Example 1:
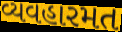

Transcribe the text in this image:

વ્યવહારમત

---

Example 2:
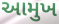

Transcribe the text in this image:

આમુખ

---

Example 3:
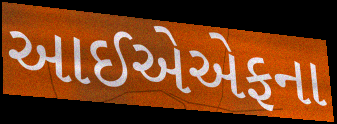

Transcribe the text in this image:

આઈએએફના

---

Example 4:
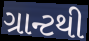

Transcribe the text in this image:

ગ્રાન્ટથી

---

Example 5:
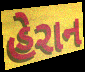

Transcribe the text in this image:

હેરાન